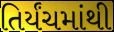
તિર્યંચમાંથી